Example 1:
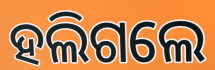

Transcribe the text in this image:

ହଲିଗଲେ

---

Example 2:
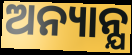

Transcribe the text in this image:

ଅନ୍ୟାନ୍ଯ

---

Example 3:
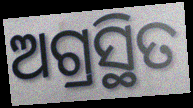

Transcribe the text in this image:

ଅଗ୍ରସ୍ଥିତ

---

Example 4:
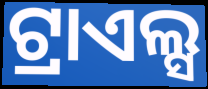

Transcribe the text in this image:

ଟ୍ରାଏଲ୍ସ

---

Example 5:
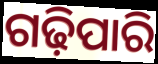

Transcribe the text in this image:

ଗଢ଼ିପାରି